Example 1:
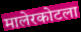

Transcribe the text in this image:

मालेरकोटला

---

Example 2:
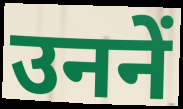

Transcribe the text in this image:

उननें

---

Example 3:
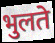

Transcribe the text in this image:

भुलते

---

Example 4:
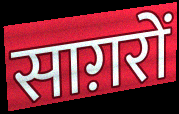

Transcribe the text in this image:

साग़रों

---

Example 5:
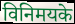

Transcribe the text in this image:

विनिमयके